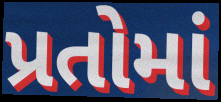
પ્રતોમાં